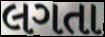
લગતા